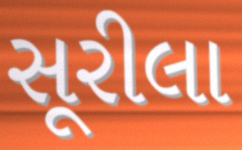
સૂરીલા